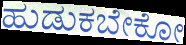
ಹುಡುಕಬೇಕೋ